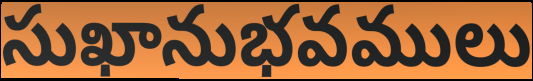
సుఖానుభవములు